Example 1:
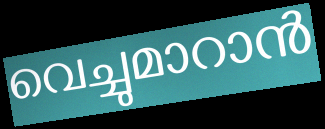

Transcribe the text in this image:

വെച്ചുമാറാൻ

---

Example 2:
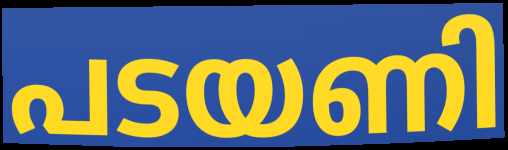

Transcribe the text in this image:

പടയണി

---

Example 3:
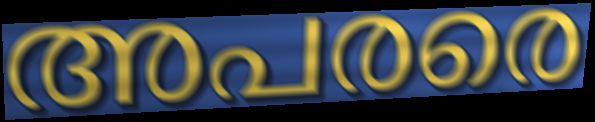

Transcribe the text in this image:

അപരരെ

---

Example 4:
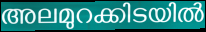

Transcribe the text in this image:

അലമുറക്കിടയിൽ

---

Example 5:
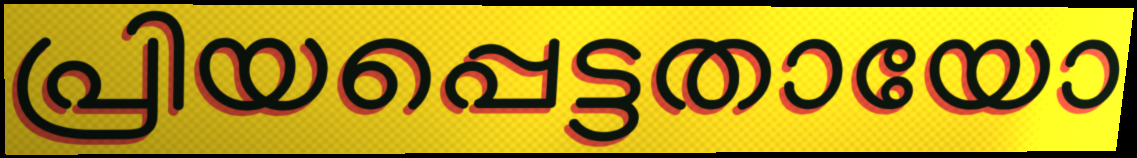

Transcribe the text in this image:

പ്രിയപ്പെട്ടതായോ